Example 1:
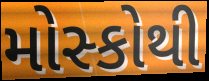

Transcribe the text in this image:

મોસ્કોથી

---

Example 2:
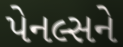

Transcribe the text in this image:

પેનલ્સને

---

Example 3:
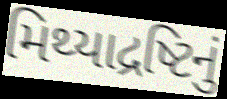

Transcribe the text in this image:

મિથ્યાદ્રષ્ટિનું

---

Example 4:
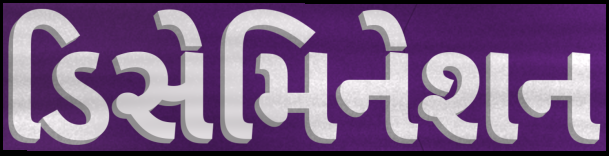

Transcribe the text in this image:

ડિસેમિનેશન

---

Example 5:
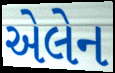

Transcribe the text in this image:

એલેન